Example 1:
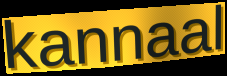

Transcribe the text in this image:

kannaal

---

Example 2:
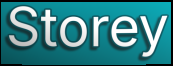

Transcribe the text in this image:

Storey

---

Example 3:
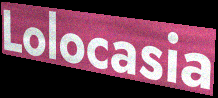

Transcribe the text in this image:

Lolocasia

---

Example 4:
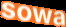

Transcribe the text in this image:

sowa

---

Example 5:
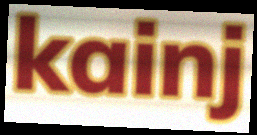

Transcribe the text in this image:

kainj